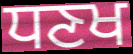
ਧਣਖ